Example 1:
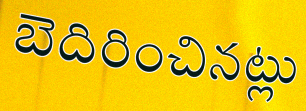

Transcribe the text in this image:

బెదిరించినట్లు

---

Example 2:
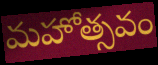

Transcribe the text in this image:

మహోత్సవం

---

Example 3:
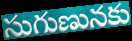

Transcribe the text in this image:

సుగుణునకు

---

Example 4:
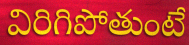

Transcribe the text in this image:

విరిగిపోతుంటే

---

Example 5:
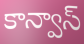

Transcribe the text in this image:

కాన్వాస్